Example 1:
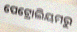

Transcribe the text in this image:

ପେଟ୍ରୋଲିୟମରୁ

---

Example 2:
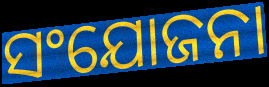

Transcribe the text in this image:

ସଂଯୋଜନା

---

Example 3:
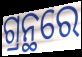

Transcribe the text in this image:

ଗ୍ରନ୍ଥରେ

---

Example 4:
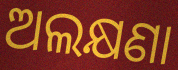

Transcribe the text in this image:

ଅଲକ୍ଷଣା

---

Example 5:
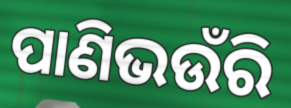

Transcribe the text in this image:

ପାଣିଭଉଁରି